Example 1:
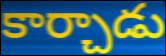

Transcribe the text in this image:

కార్చాడు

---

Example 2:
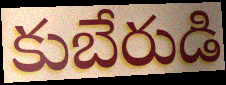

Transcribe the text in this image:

కుబేరుడి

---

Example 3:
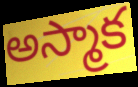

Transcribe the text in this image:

అస్మాక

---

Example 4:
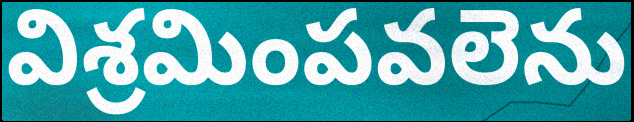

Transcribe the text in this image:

విశ్రమింపవలెను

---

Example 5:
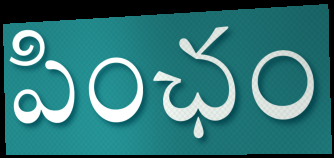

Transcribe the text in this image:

పింఛం